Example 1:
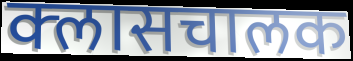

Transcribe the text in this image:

क्‍लासचालक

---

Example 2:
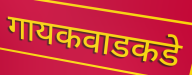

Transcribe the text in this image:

गायकवाडकडे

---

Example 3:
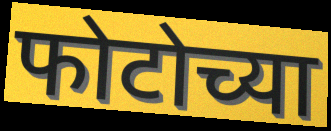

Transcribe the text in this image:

फोटोच्या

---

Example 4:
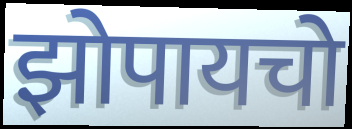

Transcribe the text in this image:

झोपायचो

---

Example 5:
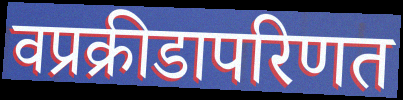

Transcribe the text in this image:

वप्रक्रीडापरिणत